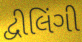
દ્વીલિંગી